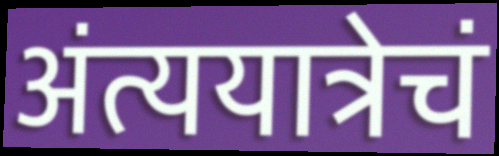
अंत्ययात्रेचं